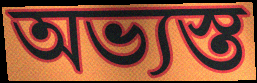
অভ্যস্ত